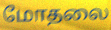
மோதலை